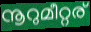
നൂറുമീറ്റര്